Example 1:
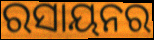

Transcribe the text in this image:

ରସାୟନର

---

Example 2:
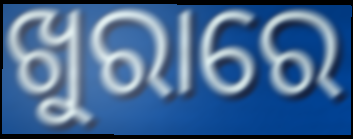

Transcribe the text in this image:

ଖୁରାରେ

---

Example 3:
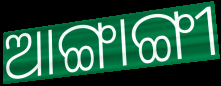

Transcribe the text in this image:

ଆଙ୍ଗାଙ୍ଗୀ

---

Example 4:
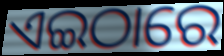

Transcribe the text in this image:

ଏଇଠାରେ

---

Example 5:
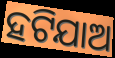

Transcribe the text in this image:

ହଟିଯାଅ